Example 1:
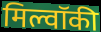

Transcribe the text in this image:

मिल्वॉकी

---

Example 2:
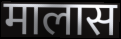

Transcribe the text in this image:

मालास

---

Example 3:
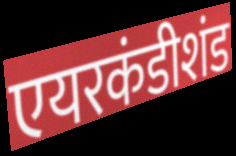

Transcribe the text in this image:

एयरकंडीशंड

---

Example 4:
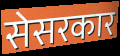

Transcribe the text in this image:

सेसरकार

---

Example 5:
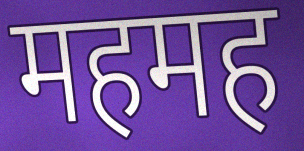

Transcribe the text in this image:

महमह